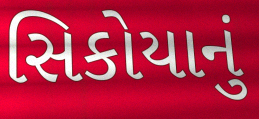
સિકોયાનું